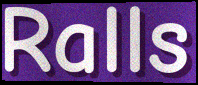
Ralls